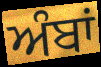
ਅੰਬਾਂ